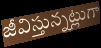
జీవిస్తున్నట్లుగా